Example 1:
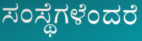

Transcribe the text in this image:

ಸಂಸ್ಥೆಗಳೆಂದರೆ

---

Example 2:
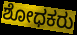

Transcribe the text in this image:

ಶೋಧಕರು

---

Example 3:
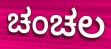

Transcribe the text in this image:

ಚಂಚಲ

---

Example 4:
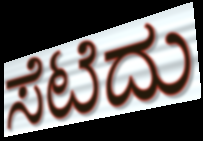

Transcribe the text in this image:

ಸೆಟೆದು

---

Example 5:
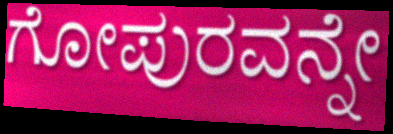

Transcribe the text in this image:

ಗೋಪುರವನ್ನೇ